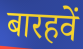
बारहवें